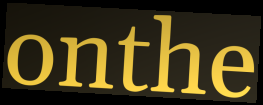
onthe